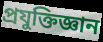
প্রযুক্তিজ্ঞান